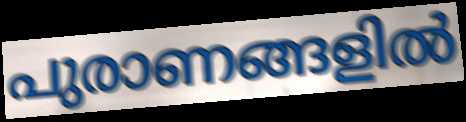
പുരാണങ്ങളിൽ